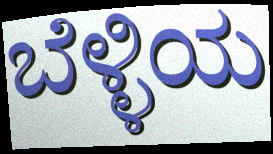
ಬೆಳ್ಳಿಯ